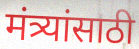
मंत्र्यांसाठी